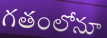
గతంలోనూ